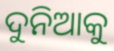
ଦୁନିଆକୁ